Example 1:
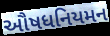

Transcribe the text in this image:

ઔષધનિયમન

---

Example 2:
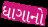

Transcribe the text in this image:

ધાગાનો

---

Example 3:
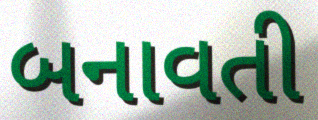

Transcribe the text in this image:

બનાવતી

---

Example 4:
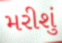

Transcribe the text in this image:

મરીશું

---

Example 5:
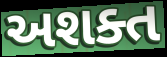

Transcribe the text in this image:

અશક્ત